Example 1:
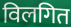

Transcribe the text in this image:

विलगित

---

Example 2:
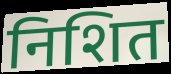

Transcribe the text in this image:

निशित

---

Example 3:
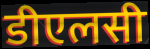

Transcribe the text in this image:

डीएलसी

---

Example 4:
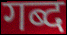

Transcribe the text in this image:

गब्द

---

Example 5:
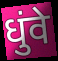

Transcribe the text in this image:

धुंवे